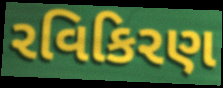
રવિકિરણ